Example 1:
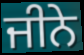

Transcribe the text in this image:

ਜੀਨੇ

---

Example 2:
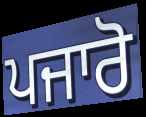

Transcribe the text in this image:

ਪਜਾਰੋ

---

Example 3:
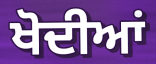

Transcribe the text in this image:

ਖੋਦੀਆਂ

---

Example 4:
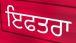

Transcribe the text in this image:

ਇਫਤਰਾ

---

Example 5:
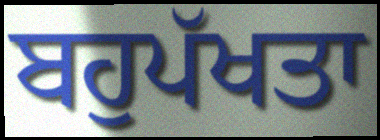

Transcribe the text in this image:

ਬਹੁਪੱਖਤਾ